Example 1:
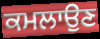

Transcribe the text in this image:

ਕਮਲਾਉਣ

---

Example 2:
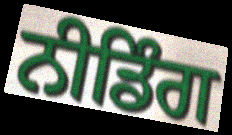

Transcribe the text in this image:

ਨੀਡਿੰਗ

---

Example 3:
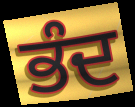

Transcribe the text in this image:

ਭੰਦ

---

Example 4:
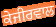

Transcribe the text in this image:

ਕੇਜੀਰਵਾਲ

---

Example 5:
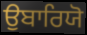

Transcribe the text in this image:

ਉਬਾਰਿਯੋ